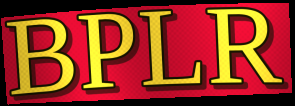
BPLR